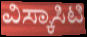
ವಿಸ್ಕಾಸಿಟಿ